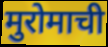
मुरोमाची